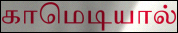
காமெடியால்